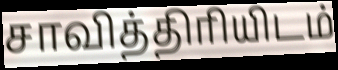
சாவித்திரியிடம்